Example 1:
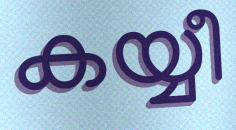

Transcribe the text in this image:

കയ്യീ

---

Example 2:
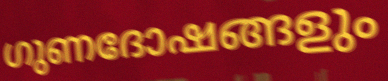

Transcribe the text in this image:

ഗുണദോഷങ്ങളും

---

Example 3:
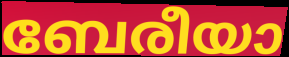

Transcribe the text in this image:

ബേരീയാ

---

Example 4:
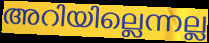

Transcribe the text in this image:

അറിയില്ലെന്നല്ല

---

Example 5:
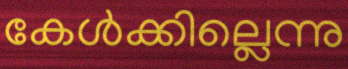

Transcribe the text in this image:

കേൾക്കില്ലെന്നു